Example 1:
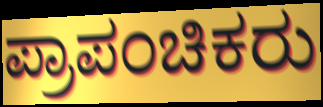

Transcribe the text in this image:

ಪ್ರಾಪಂಚಿಕರು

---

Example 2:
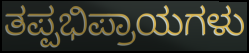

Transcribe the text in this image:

ತಪ್ಪಭಿಪ್ರಾಯಗಳು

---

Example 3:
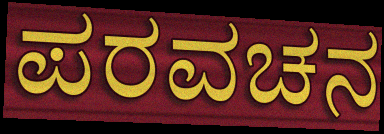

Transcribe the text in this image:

ಪರವಚನ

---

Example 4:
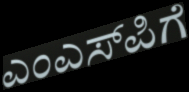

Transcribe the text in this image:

ಎಂಎಸ್‌ಪಿಗೆ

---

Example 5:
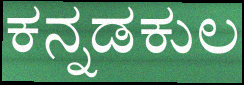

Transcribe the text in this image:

ಕನ್ನಡಕುಲ